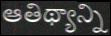
ఆతిథ్యాన్ని